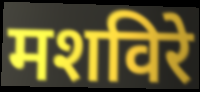
मशविरे